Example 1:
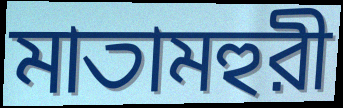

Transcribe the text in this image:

মাতামহুরী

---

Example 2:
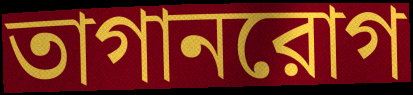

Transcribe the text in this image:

তাগানরোগ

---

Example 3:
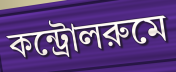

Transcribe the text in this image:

কন্ট্রোলরুমে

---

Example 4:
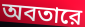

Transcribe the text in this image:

অবতারে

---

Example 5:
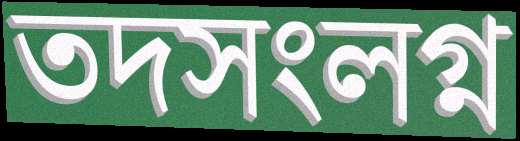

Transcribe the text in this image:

তদসংলগ্ন